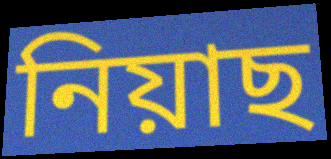
নিয়াছ